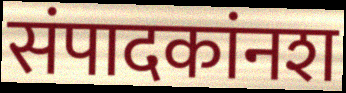
संपादकांनश